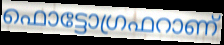
ഫൊട്ടോഗ്രഫറാണ്